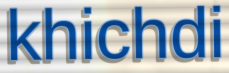
khichdi